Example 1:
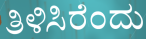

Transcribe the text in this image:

ತಿಳಿಸಿರೆಂದು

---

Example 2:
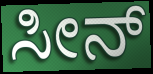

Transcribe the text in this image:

ಸೀನ್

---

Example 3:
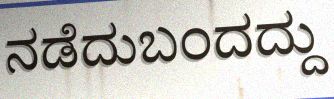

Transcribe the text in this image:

ನಡೆದುಬಂದದ್ದು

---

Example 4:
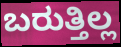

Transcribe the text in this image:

ಬರುತ್ತಿಲ್ಲ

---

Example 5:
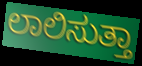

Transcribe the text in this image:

ಲಾಲಿಸುತ್ತಾ